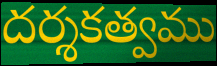
దర్శకత్వము